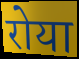
रोया